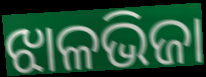
ଝାଳଭିଜା